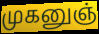
முகனுஞ்